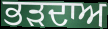
ਭੜਦਾਅ